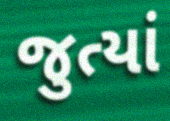
જુત્યાં